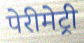
पेरीमेट्री